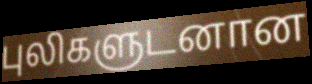
புலிகளுடனான